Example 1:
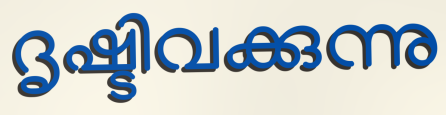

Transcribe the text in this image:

ദൃഷ്ടിവക്കുന്നു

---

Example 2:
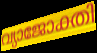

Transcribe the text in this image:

വ്യാജോക്തി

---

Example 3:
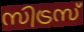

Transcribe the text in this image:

സിട്രസ്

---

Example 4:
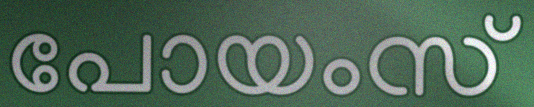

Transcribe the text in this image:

പോയംസ്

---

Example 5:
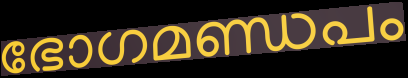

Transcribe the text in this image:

ഭോഗമണ്ഡപം